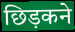
छिड़कने